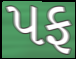
પફ